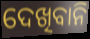
ଦେଖିବାନି